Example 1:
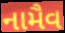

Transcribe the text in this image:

નામૈવ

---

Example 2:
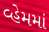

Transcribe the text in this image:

વ્હેમમાં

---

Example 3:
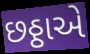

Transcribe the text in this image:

છઠ્ઠાએ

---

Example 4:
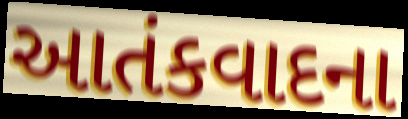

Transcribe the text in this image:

આતંકવાદના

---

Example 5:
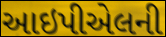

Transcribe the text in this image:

આઇપીએલની